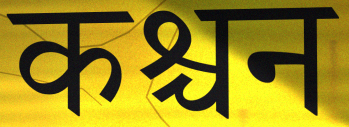
कश्चन